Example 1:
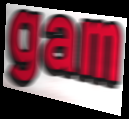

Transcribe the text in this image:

gam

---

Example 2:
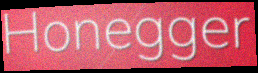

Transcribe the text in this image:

Honegger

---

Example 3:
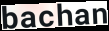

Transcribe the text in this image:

bachan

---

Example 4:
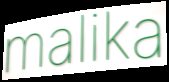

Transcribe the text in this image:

malika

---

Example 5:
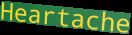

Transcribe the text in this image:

Heartache